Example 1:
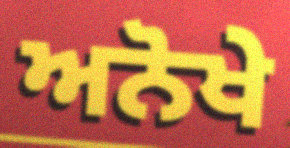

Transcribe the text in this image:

ਅਨੋਖੇ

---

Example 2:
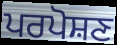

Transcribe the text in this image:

ਪਰਪੋਸ਼ਣ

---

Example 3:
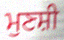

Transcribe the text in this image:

ਮੁਣਸ਼ੀ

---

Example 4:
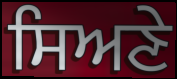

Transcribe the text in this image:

ਸਿਅਣੇ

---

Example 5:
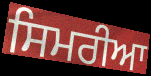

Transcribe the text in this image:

ਸਿਮਰੀਆ